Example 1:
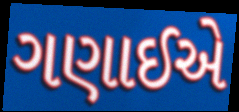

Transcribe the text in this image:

ગણાઈએ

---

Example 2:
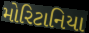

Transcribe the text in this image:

મોરિટાનિયા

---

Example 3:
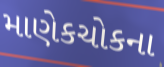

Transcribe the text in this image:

માણેકચોકના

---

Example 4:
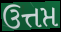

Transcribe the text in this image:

ઉત્તપ્ત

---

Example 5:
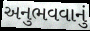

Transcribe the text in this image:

અનુભવવાનું